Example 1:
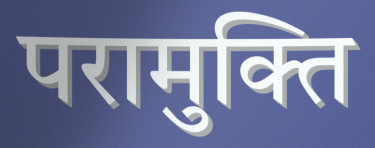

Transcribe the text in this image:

परामुक्ति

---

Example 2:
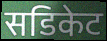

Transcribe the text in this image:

सडिकेट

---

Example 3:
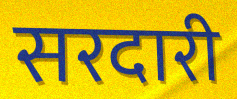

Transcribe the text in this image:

सरदारी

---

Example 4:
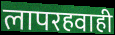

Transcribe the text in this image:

लापरहवाही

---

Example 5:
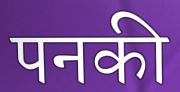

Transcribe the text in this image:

पनकी